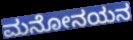
ಮನೋನಯನ